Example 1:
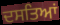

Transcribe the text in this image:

ਦਸਤਿਆਂ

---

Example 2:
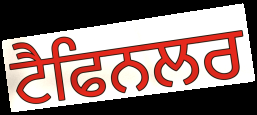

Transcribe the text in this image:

ਟੈਫਿਨਲਰ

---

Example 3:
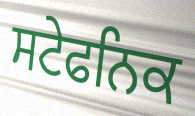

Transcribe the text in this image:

ਸਟੇਫਨਿਕ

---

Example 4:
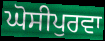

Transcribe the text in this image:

ਘੋਸੀਪੁਰਵਾ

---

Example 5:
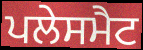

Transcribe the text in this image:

ਪਲੇਸਮੈਟ